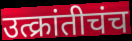
उत्क्रांतीचंच